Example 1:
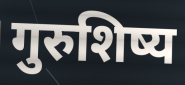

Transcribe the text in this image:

गुरुशिष्य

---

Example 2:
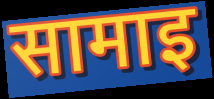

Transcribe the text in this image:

सामाइ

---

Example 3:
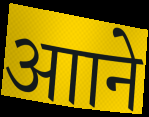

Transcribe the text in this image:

आाने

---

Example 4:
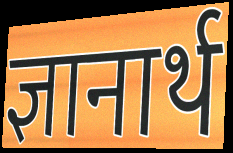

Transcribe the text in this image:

ज्ञानार्थ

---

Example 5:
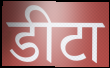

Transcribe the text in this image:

डीटा